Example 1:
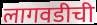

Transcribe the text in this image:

लागवडीची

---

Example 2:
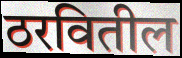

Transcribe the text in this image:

ठरवितील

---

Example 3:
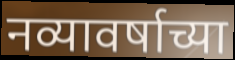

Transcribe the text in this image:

नव्यावर्षाच्या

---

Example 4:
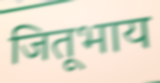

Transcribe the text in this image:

जितूभाय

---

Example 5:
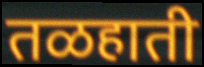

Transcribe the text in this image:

तळहाती